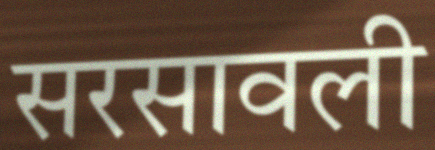
सरसावली